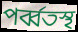
পর্ব্বতস্থ